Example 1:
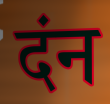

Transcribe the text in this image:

दंन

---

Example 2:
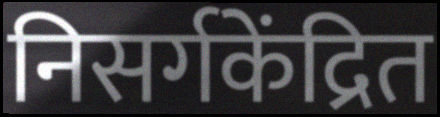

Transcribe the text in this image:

निसर्गकेंद्रित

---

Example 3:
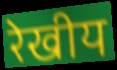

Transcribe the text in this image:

रेखीय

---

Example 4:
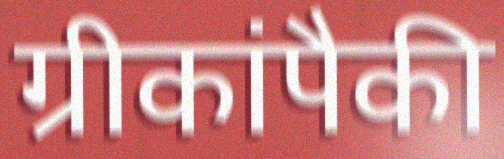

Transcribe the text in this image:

ग्रीकांपैकी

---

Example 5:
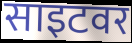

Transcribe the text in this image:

साइटवर